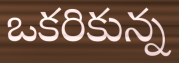
ఒకరికున్న